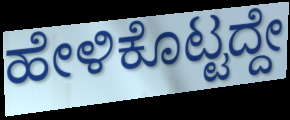
ಹೇಳಿಕೊಟ್ಟದ್ದೇ